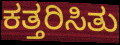
ಕತ್ತರಿಸಿತು